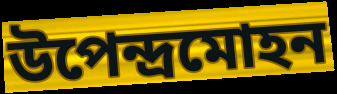
উপেন্দ্রমোহন